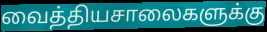
வைத்தியசாலைகளுக்கு